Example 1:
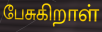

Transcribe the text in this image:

பேசுகிறாள்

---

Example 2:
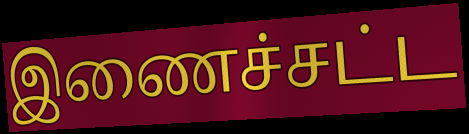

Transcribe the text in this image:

இணைச்சட்ட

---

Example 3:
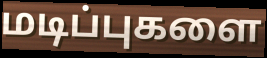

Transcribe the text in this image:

மடிப்புகளை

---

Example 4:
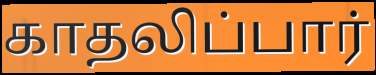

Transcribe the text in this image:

காதலிப்பார்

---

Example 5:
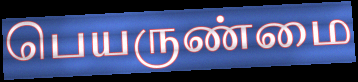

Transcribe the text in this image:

பெயருண்மை